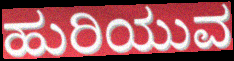
ಹುರಿಯುವ